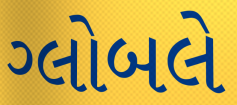
ગ્લોબલે